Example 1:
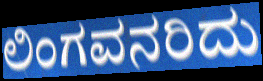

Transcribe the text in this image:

ಲಿಂಗವನರಿದು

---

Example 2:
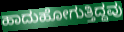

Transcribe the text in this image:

ಹಾದುಹೋಗುತ್ತಿದ್ದವು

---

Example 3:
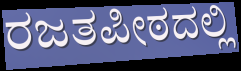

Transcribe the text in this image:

ರಜತಪೀಠದಲ್ಲಿ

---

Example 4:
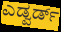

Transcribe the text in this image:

ಎಡ್ವರ್ಡ್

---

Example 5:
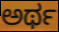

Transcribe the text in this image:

ಅರ್ಥ